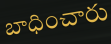
బాధించారు